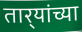
तार्‍यांच्या